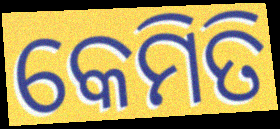
କେମିତି